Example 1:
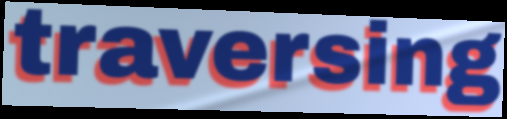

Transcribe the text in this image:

traversing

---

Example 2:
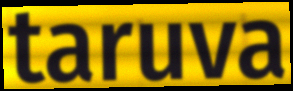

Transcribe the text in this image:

taruva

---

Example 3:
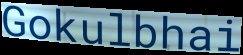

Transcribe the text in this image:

Gokulbhai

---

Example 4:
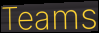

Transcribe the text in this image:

Teams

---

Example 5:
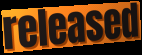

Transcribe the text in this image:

released